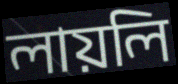
লায়লি